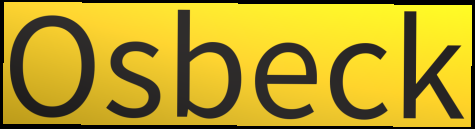
Osbeck